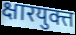
क्षारयुक्त